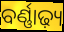
ବର୍ଣ୍ଣାଢ଼୍ୟ